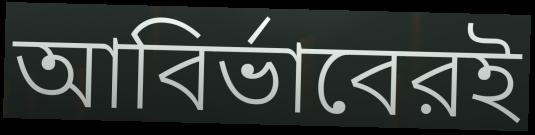
আবির্ভাবেরই